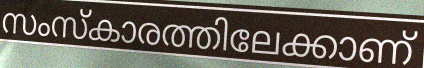
സംസ്കാരത്തിലേക്കാണ്